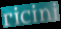
ricini